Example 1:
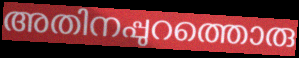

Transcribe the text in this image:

അതിനപ്പുറത്തൊരു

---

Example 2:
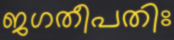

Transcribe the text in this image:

ജഗതീപതിഃ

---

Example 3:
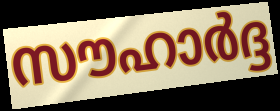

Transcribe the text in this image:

സൗഹാർദ്ദ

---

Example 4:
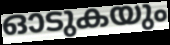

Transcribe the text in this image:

ഓടുകയും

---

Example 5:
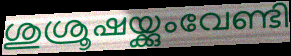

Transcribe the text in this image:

ശുശ്രൂഷയ്ക്കുംവേണ്ടി